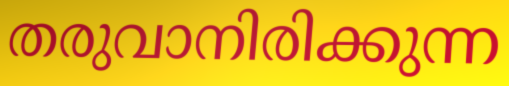
തരുവാനിരിക്കുന്ന